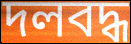
দলবদ্ধ